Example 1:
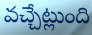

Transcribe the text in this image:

వచ్చేట్లుంది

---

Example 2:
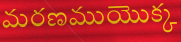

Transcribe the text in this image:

మరణముయొక్క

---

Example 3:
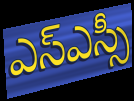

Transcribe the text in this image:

ఎస్ఎస్సీ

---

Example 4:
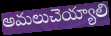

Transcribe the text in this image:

అమలుచెయ్యాలి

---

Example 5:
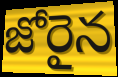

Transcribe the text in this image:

జోరైన